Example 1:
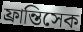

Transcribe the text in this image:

ফ্রান্তিসেক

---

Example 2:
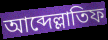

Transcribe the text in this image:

আব্দেল্লাতিফ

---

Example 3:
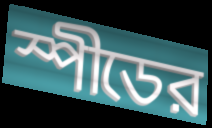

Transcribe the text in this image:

স্পীডের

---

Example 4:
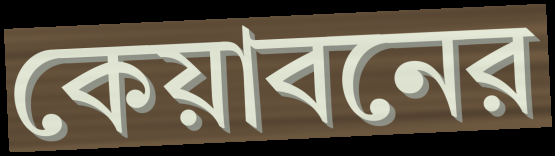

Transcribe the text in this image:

কেয়াবনের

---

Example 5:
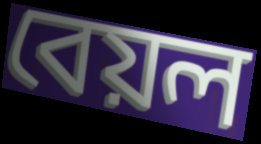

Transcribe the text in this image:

বেয়ল